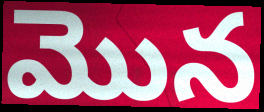
మొన